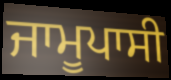
ਜਾਮੂਪਾਸੀ